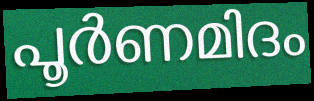
പൂർണമിദം